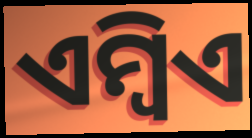
ଏମ୍ବିଏ